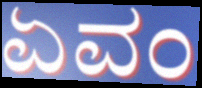
ಏವಂ